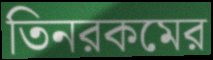
তিনরকমের